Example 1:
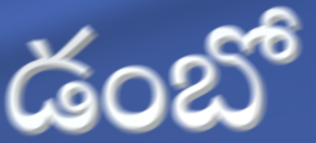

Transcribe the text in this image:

డంబో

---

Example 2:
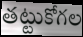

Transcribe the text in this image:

తట్టుకోగల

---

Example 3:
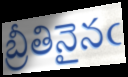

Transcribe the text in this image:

బ్రీతినైనఁ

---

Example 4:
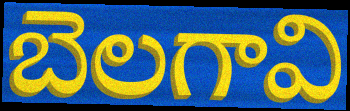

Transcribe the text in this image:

బెలగావి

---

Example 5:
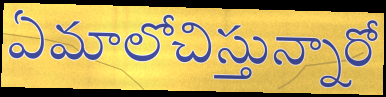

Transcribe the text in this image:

ఏమాలోచిస్తున్నారో